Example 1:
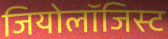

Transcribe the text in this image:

जियोलॉजिस्ट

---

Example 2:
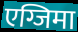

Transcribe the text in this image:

एग्जिमा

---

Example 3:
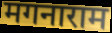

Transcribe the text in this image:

मगनाराम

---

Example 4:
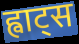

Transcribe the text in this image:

ह्वाट्स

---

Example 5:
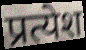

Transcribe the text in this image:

प्रत्येश